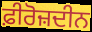
ਫ਼ੀਰੋਜ਼ਦੀਨ